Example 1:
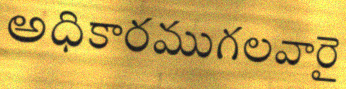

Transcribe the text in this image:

అధికారముగలవారై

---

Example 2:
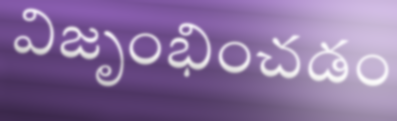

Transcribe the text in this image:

విజృంభించడం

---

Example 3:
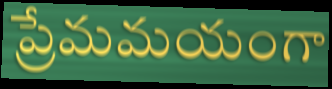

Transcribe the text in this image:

ప్రేమమయంగా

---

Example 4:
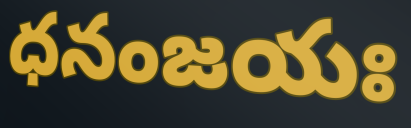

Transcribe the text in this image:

ధనంజయః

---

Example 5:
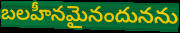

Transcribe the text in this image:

బలహీనమైనందునను